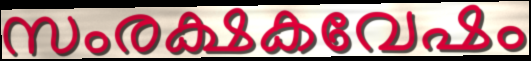
സംരക്ഷകവേഷം